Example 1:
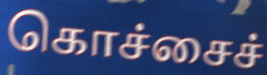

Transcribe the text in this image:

கொச்சைச்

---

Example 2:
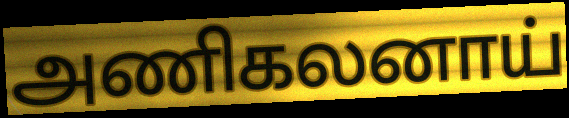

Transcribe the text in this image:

அணிகலனாய்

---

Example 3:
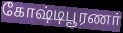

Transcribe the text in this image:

கோஷ்டிபூரணர்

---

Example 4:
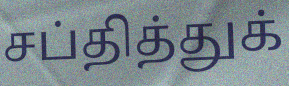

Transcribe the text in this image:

சப்தித்துக்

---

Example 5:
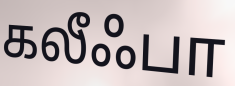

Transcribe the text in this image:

கலீஃபா